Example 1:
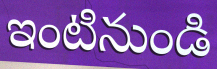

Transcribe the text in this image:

ఇంటినుండి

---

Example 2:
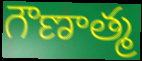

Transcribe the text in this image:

గౌణాత్మ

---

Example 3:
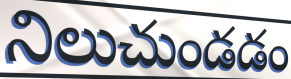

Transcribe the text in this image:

నిలుచుండడం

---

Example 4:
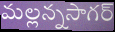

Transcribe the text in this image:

మల్లన్నసాగర్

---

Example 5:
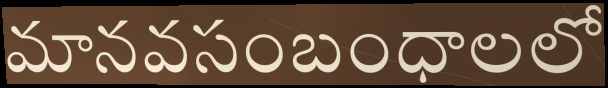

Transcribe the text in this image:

మానవసంబంధాలలో